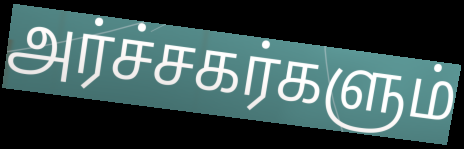
அர்ச்சகர்களும்